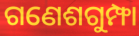
ଗଣେଶଗୁମ୍ଫା